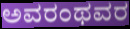
ಅವರಂಥವರ